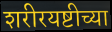
शरीरयष्टीच्या